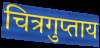
चित्रगुप्ताय